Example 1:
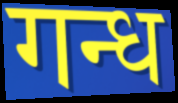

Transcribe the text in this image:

गन्‍ध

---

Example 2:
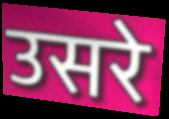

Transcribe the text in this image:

उसरे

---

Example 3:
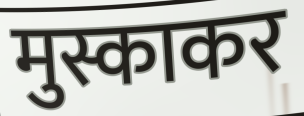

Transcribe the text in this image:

मुस्काकर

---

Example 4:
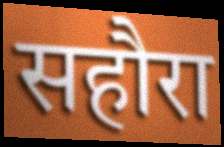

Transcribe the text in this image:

सहौरा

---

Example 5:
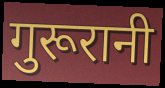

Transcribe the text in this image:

गुरूरानी